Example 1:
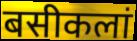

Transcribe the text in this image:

बसीकलां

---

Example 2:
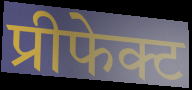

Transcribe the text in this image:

प्रीफेक्ट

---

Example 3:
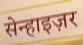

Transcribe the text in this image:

सेन्हाइज़र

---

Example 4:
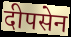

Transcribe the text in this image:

दीपसेन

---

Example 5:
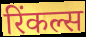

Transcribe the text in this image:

रिंकल्स